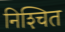
निश्‍चित